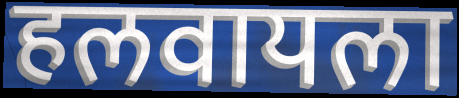
हलवायला